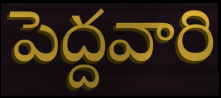
పెద్దవారి